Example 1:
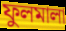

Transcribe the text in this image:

ফুলমালা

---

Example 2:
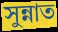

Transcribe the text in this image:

সুন্নাত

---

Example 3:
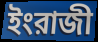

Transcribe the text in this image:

ইংরাজী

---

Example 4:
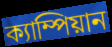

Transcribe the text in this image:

ক্যাম্পিয়ান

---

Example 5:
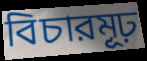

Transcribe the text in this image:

বিচারমূঢ়